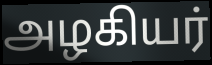
அழகியர்